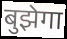
बुझेगा